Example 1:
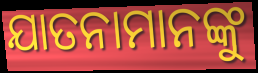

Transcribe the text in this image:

ଯାତନାମାନଙ୍କୁ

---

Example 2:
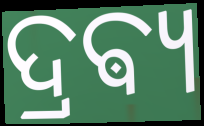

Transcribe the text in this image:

ଦ୍ରଵ୍ୟ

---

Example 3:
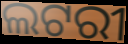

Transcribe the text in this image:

ଲଟରୀ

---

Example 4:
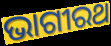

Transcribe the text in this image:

ଭାଗୀରଥ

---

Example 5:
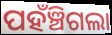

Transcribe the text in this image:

ପହଁଞ୍ଚିଗଲା